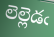
లెల్లెడఁ